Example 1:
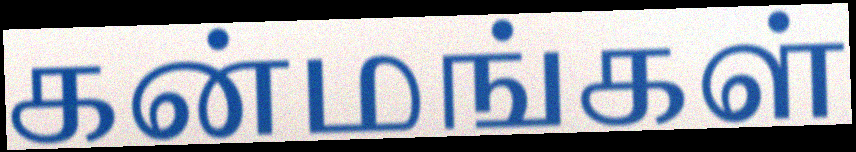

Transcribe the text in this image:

கன்மங்கள்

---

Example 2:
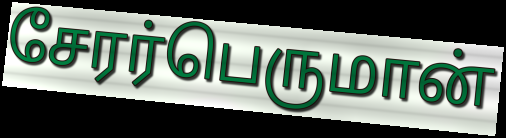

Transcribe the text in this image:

சேரர்பெருமான்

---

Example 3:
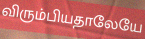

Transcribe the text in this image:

விரும்பியதாலேயே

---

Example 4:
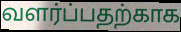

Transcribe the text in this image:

வளர்ப்பதற்காக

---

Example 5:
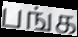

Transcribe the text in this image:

பங்க